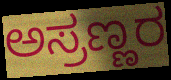
ಅಸ್ರಣ್ಣರ